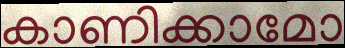
കാണിക്കാമോ